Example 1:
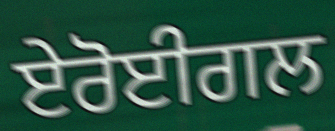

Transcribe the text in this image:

ਏਰੋਈਗਲ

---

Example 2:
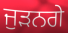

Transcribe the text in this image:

ਜੁਡ਼ਨਗੇ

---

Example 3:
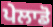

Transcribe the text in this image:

ਪੇਲਾਡੋ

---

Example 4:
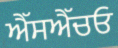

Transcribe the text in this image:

ਐੱਸਐੱਚਓ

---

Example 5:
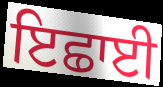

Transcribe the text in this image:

ਇਛਾਈ